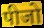
पीजो